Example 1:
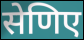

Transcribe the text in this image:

सेणिए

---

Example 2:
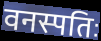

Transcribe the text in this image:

वनस्पतिः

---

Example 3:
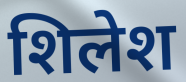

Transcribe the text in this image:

शिलेश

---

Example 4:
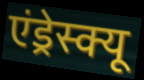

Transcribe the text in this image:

एंड्रेस्क्यू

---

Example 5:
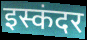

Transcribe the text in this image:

इस्कंदर